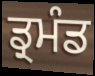
ਡ੍ਰਮੰਡ